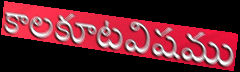
కాలకూటవిషము